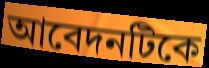
আবেদনটিকে